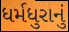
ધર્મધુરાનું